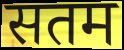
सतम